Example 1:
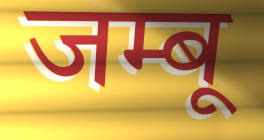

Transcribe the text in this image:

जम्बू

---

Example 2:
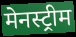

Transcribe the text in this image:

मेनस्ट्रीम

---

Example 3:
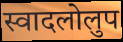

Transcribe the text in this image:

स्वादलोलुप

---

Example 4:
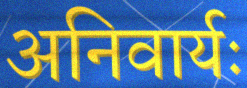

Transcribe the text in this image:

अनिवार्यः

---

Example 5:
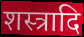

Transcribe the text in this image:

शस्त्रादि